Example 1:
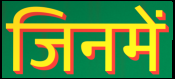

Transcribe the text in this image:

जिनमें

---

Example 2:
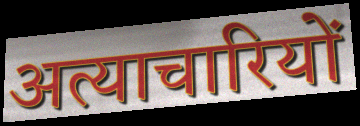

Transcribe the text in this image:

अत्याचारियों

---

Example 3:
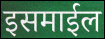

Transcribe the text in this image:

इसमाईल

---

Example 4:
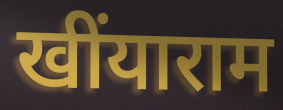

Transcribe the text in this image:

खींयाराम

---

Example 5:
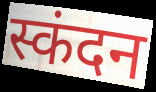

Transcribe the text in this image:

स्कंदन